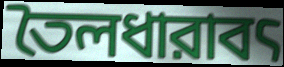
তৈলধারাবৎ